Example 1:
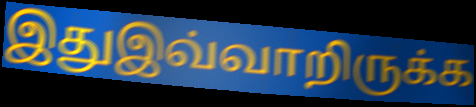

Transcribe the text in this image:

இதுஇவ்வாறிருக்க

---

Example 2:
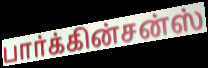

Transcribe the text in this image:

பார்க்கின்சன்ஸ்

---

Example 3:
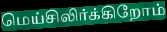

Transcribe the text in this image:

மெய்சிலிர்க்கிறோம்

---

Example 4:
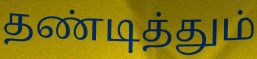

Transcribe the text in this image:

தண்டித்தும்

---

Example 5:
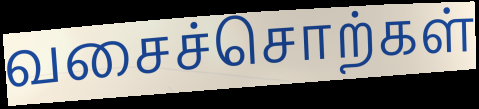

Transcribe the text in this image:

வசைச்சொற்கள்